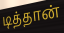
டித்தான்